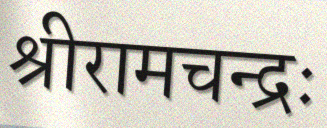
श्रीरामचन्द्रः